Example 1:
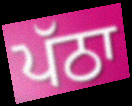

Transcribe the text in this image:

ਪੱਠਾ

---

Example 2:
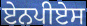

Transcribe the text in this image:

ਏਨਪੀਏਸ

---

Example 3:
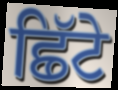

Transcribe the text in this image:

ਛਿੱਟੇ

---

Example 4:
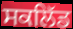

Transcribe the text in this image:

ਸਕਲਿੱਡ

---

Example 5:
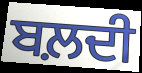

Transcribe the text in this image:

ਬਲ਼ਦੀ